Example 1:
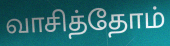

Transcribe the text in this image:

வாசித்தோம்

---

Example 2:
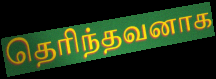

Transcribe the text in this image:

தெரிந்தவனாக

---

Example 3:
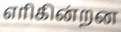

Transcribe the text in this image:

எரிகின்றன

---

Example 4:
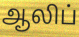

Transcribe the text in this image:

ஆலிப்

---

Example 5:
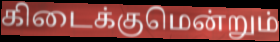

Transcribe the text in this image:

கிடைக்குமென்றும்